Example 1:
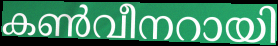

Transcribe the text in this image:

കൺവീനറായി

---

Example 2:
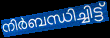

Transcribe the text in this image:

നിർബന്ധിച്ചിട്ട്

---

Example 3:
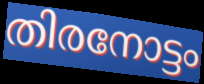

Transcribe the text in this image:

തിരനോട്ടം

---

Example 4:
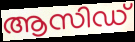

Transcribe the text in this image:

ആസിഡ്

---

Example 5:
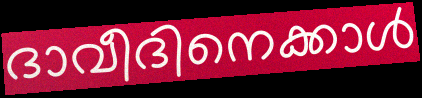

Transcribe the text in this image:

ദാവീദിനെക്കാൾ